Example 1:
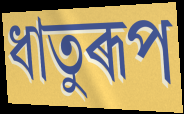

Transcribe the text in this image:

ধাতুৰূপ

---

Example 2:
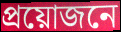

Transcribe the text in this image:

প্ৰয়োজনে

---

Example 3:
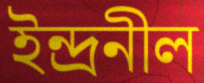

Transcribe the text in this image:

ইন্দ্ৰনীল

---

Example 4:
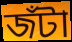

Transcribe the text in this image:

জঁটা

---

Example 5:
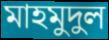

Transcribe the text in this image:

মাহমুদুল